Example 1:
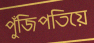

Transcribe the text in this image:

পুঁজিপতিয়ে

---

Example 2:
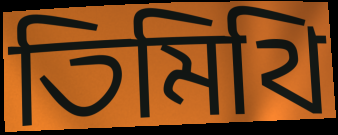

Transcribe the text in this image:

তিমিথি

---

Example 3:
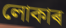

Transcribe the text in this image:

লোকাৰ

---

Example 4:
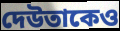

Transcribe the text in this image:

দেউতাকেও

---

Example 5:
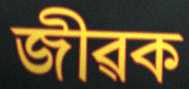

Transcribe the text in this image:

জীৱক